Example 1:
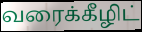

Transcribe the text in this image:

வரைக்கீழிட்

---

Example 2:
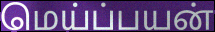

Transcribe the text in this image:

மெய்ப்பயன்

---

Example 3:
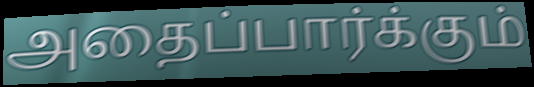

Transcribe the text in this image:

அதைப்பார்க்கும்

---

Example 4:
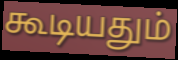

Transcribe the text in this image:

கூடியதும்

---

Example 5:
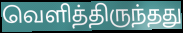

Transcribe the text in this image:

வெளித்திருந்தது